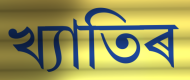
খ্যাতিৰ